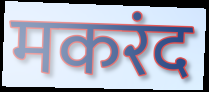
मकरंद